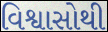
વિશ્વાસોથી